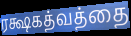
ரக்ஷகத்வத்தை